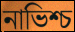
নাভিশ্চ